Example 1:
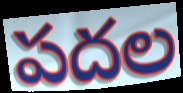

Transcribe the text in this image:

పదల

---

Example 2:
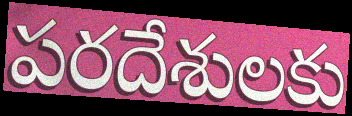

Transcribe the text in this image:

పరదేశులకు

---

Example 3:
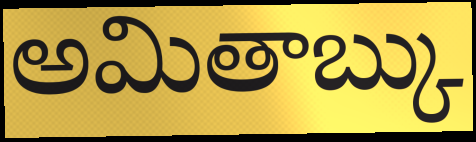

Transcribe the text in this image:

అమితాబ్కు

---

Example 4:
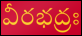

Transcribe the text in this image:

వీరభద్రః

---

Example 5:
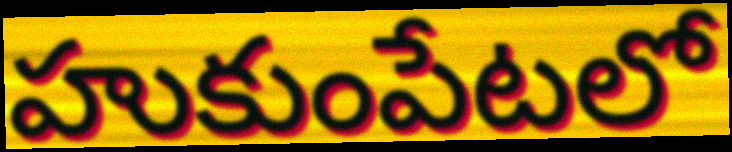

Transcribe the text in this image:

హుకుంపేటలో